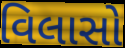
વિલાસો